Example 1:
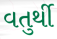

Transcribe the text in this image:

વતુર્થી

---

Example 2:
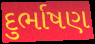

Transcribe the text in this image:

દુર્ભાષણ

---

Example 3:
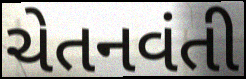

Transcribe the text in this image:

ચેતનવંતી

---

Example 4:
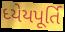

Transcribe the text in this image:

ધ્યેયપૂર્તિ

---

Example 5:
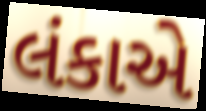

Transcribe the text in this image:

લંકાએ